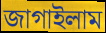
জাগাইলাম